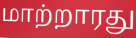
மாற்றாரது